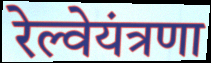
रेल्वेयंत्रणा